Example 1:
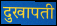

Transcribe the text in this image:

दुखापती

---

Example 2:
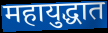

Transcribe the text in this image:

महायुद्धात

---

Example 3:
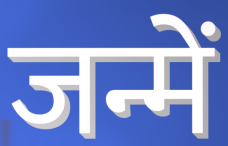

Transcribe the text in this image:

जन्में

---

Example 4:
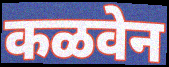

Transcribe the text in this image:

कळवेन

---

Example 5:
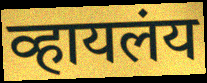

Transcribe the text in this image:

व्हायलंय